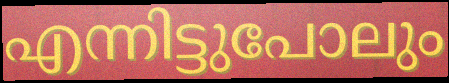
എന്നിട്ടുപോലും